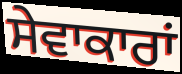
ਸੇਵਾਕਾਰਾਂ